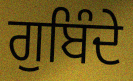
ਗੁਬਿੰਦੇ